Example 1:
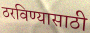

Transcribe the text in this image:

ठरविण्यासाठी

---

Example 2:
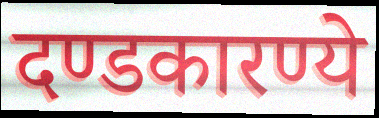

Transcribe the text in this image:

दण्डकारण्ये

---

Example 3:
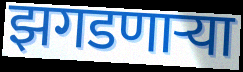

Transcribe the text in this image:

झगडणाऱ्या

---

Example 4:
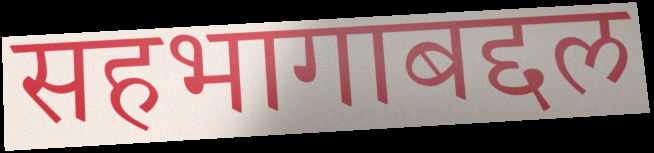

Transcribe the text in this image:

सहभागाबद्दल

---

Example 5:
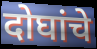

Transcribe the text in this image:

दोघांचे